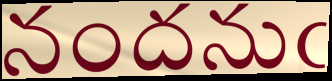
నందనుఁ